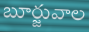
బూర్జువాల